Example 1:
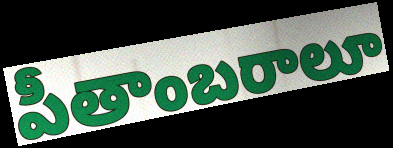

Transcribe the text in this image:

పీతాంబరాలూ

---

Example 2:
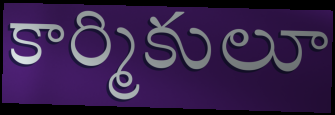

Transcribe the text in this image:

కార్మికులూ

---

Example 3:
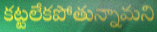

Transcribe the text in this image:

కట్టలేకపోతున్నామని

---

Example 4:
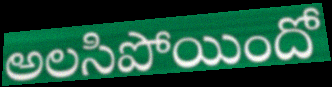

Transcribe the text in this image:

అలసిపోయిందో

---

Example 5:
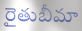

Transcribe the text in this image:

రైతుబీమా